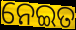
ନେଇତ